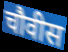
चौवीस